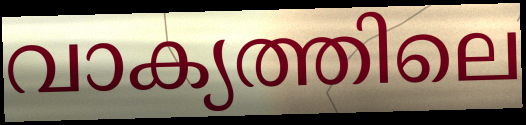
വാക്യത്തിലെ